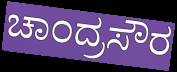
ಚಾಂದ್ರಸೌರ